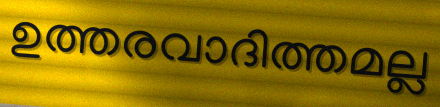
ഉത്തരവാദിത്തമല്ല